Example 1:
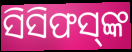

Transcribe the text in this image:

ସିସିଫସ୍‌ଙ୍କ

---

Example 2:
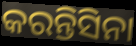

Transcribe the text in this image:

କରନ୍ତିସିନା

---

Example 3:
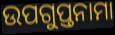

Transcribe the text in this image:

ଉପଗୁପ୍ତନାମା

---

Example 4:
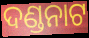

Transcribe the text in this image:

ଦଣ୍ଡନାଟ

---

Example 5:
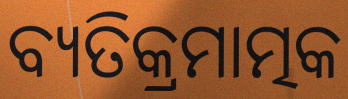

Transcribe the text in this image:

ବ୍ୟତିକ୍ରମାତ୍ମକ